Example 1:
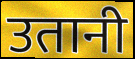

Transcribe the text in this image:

उतानी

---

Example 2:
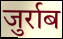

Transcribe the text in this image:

जुर्राब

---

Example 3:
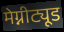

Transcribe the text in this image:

मेग्नीट्यूड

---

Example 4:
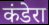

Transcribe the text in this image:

कंडेरा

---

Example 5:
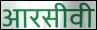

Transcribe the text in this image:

आरसीवी